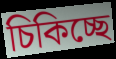
চিকিচ্ছে